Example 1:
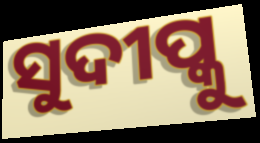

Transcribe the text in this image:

ସୁଦୀପ୍କୁ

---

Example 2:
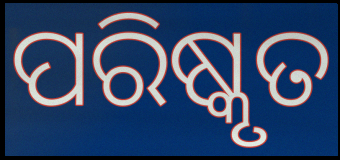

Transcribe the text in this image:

ପରିଷ୍କୃତ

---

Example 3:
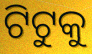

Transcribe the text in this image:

ଟିଟୁକୁ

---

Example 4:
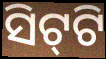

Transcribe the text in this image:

ସିଟ୍‌ଟି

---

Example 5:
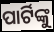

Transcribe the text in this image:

ପାର୍ଟିଙ୍କୁ